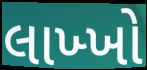
લાખ્ખો